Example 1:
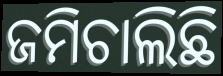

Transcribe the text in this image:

ଜମିଚାଲିଛି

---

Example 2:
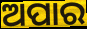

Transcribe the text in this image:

ଅପାର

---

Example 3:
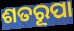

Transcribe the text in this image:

ଶତରୂପା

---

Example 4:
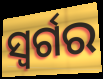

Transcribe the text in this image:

ସ୍ୱର୍ଗର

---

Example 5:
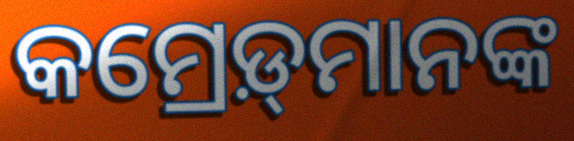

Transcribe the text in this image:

କମ୍ରେଡ଼୍‌ମାନଙ୍କ